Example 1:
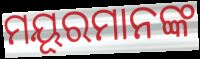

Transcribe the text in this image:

ମୟୂରମାନଙ୍କ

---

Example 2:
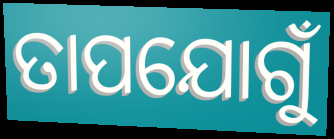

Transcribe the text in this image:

ତାପଯୋଗୁଁ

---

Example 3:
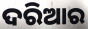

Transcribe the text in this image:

ଦରିଆର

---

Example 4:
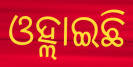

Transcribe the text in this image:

ଓହ୍ଲାଇଛି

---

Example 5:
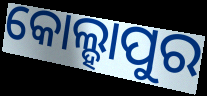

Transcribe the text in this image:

କୋଲ୍ହାପୁର